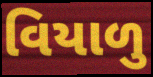
વિયાળુ